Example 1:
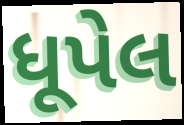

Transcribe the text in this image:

ધૂપેલ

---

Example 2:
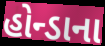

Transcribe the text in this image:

હોન્ડાના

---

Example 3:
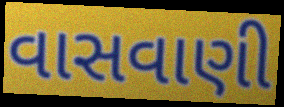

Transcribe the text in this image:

વાસવાણી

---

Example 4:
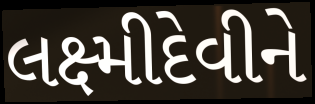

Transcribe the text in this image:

લક્ષ્મીદેવીને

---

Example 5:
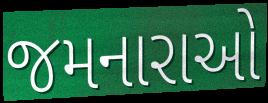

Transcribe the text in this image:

જમનારાઓ